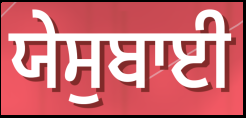
ਯੇਸੁਬਾਈ